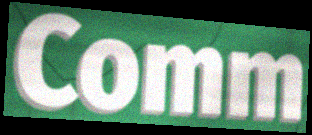
Comm